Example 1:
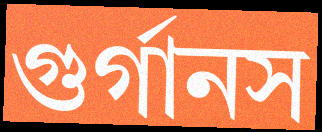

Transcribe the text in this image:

গুর্গানস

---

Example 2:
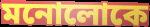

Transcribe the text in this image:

মনোলোকে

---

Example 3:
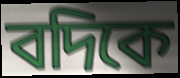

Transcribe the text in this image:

বদিকে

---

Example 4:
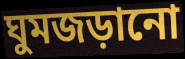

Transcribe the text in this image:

ঘুমজড়ানো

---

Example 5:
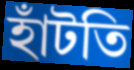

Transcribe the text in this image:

হাঁটতি